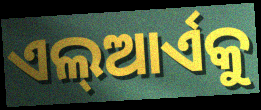
ଏଲ୍ଆର୍ଏକୁ